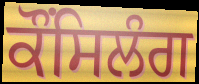
ਕੌਂਸਿਲੰਗ